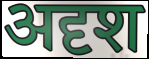
अदृश